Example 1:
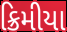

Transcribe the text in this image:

ક્રિમીયા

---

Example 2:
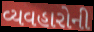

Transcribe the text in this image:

વ્યવહારોની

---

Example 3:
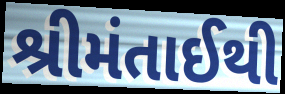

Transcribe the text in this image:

શ્રીમંતાઈથી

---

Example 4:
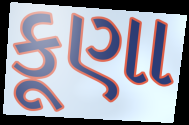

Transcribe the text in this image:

કૂણા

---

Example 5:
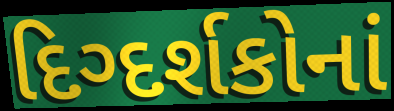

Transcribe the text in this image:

દિગ્દર્શકોનાં